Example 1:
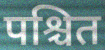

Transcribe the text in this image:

पश्चित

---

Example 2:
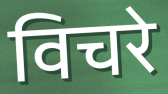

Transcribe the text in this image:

विचरे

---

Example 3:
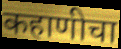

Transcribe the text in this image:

कहाणीचा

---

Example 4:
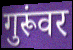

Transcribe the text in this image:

गुरूंवर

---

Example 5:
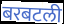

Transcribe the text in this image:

बरबटली